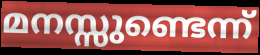
മനസ്സുണ്ടെന്ന്